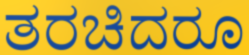
ತರಚಿದರೂ